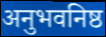
अनुभवनिष्ठ